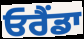
ਓਰੈਂਡਾ